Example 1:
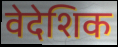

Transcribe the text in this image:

वेदेशिक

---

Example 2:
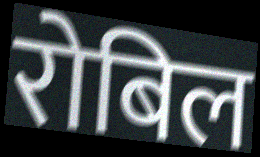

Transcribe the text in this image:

रोबिल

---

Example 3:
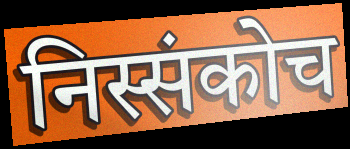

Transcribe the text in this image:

निस्संकोच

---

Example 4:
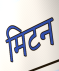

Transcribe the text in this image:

मिटन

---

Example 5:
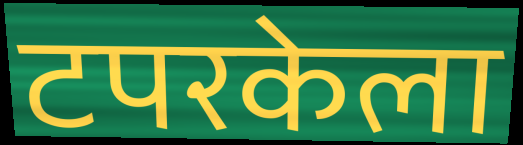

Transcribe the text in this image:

टपरकेला